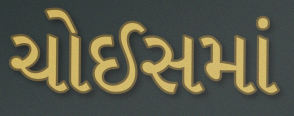
ચોઈસમાં